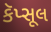
કૅપ્સૂલ